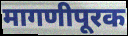
मागणीपूरक